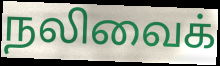
நலிவைக்